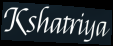
Kshatriya